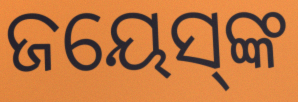
ଜୟେସ୍‌ଙ୍କ